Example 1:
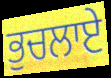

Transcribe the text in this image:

ਭੁਚਲਾਏ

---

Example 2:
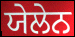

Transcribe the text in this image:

ਯੇਲੇਨ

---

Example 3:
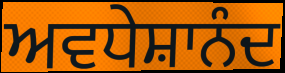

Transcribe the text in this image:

ਅਵਧੇਸ਼ਾਨੰਦ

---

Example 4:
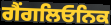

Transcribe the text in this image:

ਗੈਂਗਲਿਓਨਿਕ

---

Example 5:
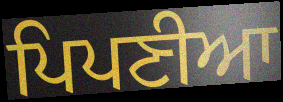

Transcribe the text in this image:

ਪਿਪਣੀਆ